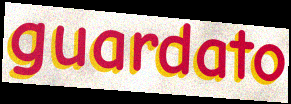
guardato